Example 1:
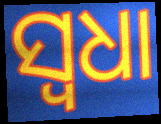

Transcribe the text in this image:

ସ୍ୱଧା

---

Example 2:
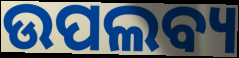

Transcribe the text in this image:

ଉପଲବ୍ୟ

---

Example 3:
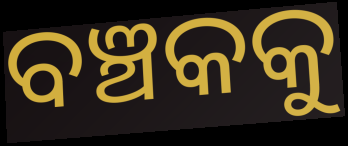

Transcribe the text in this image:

ବଞ୍ଚକକୁ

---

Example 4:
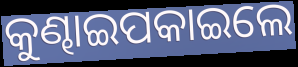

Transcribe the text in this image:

କୁଣ୍ଢାଇପକାଇଲେ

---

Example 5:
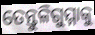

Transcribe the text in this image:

ତେନ୍ତୁଳିଗୁମ୍ମାକୁ